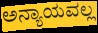
ಅನ್ಯಾಯವಲ್ಲ